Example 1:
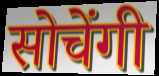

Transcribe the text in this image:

सोचेंगी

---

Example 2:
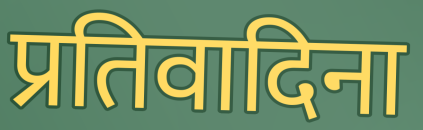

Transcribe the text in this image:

प्रतिवादिना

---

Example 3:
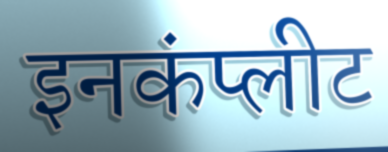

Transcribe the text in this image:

इनकंप्लीट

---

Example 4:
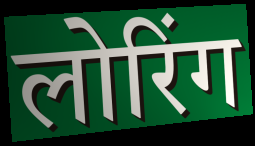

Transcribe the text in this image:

लोरिंग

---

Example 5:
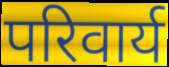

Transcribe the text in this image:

परिवार्य